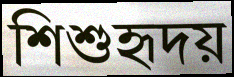
শিশুহৃদয়